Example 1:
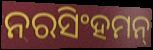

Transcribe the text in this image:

ନରସିଂହମନ୍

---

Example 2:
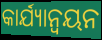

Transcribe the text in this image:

କାର୍ଯ୍ୟାନ୍ଵୟନ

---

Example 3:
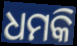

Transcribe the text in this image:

ଧମକି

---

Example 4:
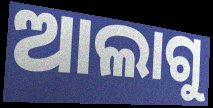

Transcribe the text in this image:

ଆଲାଗୁ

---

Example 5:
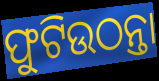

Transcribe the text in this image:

ଫୁଟିଉଠନ୍ତା